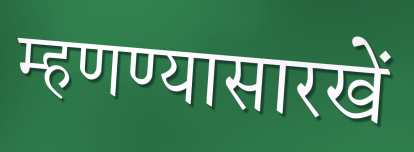
म्हणण्यासारखें